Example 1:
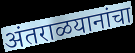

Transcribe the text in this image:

अंतराळयानांचा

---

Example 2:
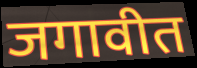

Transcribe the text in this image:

जगावीत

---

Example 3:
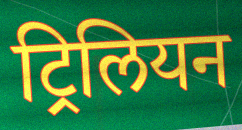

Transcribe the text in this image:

ट्रिलियन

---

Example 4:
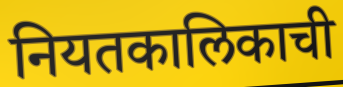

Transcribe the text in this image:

नियतकालिकाची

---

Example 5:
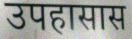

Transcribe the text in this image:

उपहासास